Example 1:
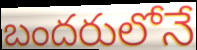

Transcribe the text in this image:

బందరులోనే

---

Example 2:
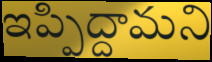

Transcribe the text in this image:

ఇప్పిద్దామని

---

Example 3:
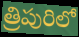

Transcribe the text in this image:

త్రిపురిలో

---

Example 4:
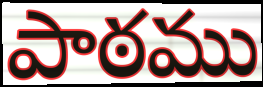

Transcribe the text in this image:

పాఠము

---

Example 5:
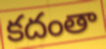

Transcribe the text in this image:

కదంతా